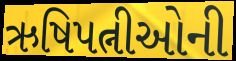
ઋષિપત્નીઓની